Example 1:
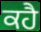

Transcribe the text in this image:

ਕਹੈ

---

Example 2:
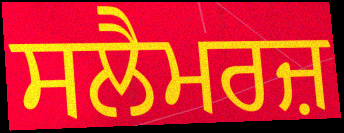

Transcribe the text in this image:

ਸਲੈਮਰਜ਼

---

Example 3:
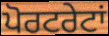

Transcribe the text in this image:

ਪੋਰਟਰੇਟਾਂ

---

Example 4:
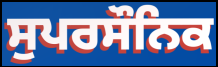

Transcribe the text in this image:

ਸੁਪਰਸੌਨਿਕ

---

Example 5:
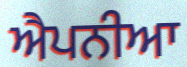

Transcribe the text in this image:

ਐਪਨੀਆ